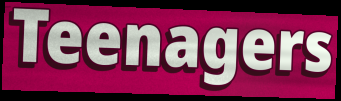
Teenagers